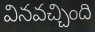
వినవచ్చింది